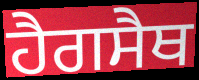
ਹੈਗਸੈਥ